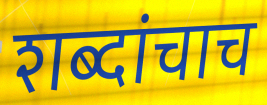
शब्दांचाच